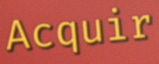
Acquir